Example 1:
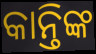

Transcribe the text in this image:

କାନ୍ତିଙ୍କ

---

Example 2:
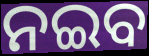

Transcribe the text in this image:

ନଇବ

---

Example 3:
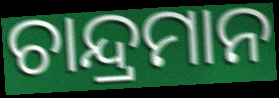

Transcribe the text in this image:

ଚାନ୍ଦ୍ରମାନ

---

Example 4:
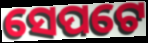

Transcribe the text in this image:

ସେପଟେ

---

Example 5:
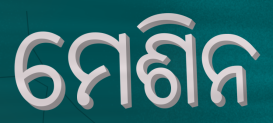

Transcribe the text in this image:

ମେଶିନ